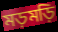
মড়মড়ি